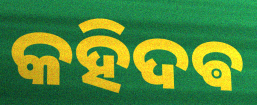
କହିଦଵ